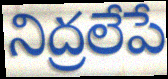
నిద్రలేపే